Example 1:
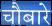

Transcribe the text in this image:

चौबारे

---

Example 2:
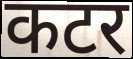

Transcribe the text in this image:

कटर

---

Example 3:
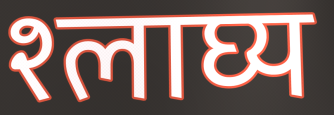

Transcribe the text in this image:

श्लाघ्य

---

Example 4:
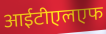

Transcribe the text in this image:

आईटीएलएफ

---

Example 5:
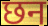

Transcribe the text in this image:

छन